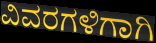
ವಿವರಗಳಿಗಾಗಿ